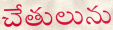
చేతులును